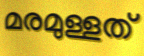
മരമുള്ളത്